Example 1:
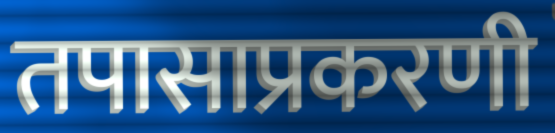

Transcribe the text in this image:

तपासाप्रकरणी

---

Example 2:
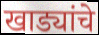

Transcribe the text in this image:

खाड्यांचे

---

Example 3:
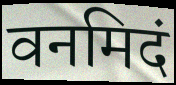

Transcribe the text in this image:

वनमिदं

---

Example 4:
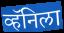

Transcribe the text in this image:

व्हॅनिला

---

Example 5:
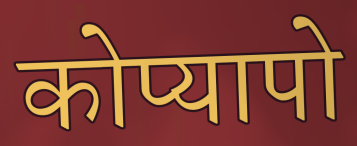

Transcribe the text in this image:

कोप्यापो